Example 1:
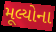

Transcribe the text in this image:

મૂલ્યોના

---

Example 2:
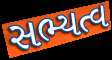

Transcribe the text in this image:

સભ્યત્વ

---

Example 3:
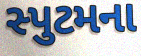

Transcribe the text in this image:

સ્પુટમના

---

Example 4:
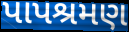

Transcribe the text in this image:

પાપશ્રમણ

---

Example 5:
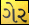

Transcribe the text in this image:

ગેર